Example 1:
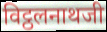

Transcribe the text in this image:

विट्ठलनाथजी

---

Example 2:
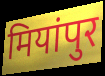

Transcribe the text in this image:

मियांपुर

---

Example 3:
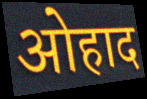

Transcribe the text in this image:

ओहाद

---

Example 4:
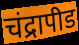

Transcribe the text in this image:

चंद्रापीड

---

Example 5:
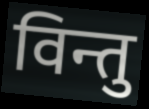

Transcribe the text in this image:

विन्तु